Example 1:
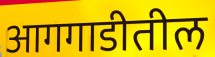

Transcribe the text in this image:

आगगाडीतील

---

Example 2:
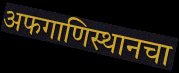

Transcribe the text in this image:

अफगाणिस्थानचा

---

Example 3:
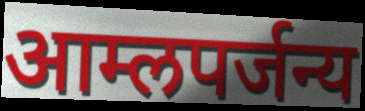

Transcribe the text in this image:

आम्लपर्जन्य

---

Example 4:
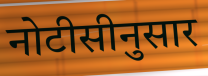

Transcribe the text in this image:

नोटीसीनुसार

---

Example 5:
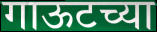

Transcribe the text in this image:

गाऊटच्या